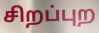
சிறப்புற